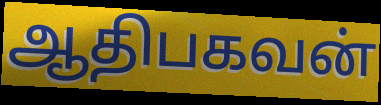
ஆதிபகவன்